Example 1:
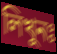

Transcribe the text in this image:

লিখুনঃ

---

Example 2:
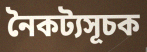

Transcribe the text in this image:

নৈকট্যসূচক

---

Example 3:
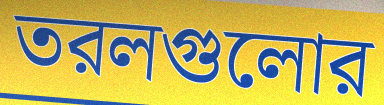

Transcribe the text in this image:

তরলগুলোর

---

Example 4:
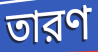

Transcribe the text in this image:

তারণ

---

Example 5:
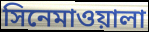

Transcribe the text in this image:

সিনেমাওয়ালা